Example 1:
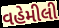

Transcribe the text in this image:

વહેમીલી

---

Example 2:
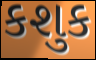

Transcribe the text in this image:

કશુક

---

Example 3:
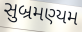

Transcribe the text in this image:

સુબ્રમણ્યમ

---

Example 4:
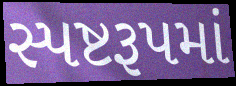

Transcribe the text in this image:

સ્પષ્ટરૂપમાં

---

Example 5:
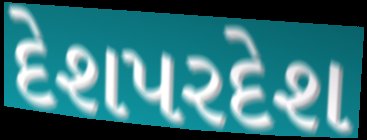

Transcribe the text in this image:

દેશપરદેશ